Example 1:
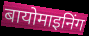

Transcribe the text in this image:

बायोमाइनिंग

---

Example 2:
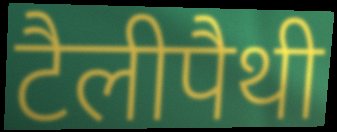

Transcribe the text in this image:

टैलीपैथी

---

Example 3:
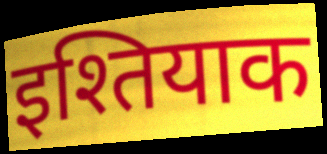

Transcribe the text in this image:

इश्तियाक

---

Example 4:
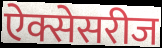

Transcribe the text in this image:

ऐक्सेसरीज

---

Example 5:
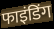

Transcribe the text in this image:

फाइंडिंग